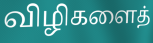
விழிகளைத்